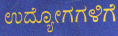
ಉದ್ಯೋಗಗಳಿಗೆ